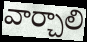
వార్చాలి